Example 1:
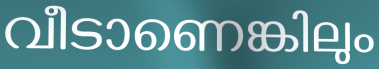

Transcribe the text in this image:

വീടാണെങ്കിലും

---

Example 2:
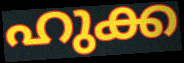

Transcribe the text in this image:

ഹുക്ക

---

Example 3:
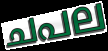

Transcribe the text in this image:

ചപല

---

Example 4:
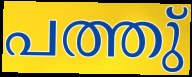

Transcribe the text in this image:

പത്തു്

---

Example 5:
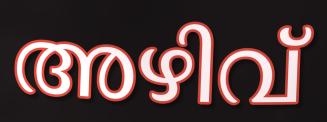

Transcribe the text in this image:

അഴിവ്